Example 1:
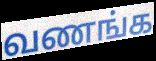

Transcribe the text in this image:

வணங்க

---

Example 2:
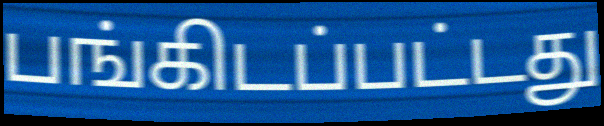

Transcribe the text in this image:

பங்கிடப்பட்டது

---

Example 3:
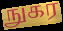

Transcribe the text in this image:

நுகர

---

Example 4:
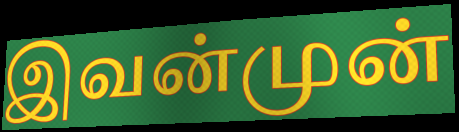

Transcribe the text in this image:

இவன்முன்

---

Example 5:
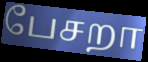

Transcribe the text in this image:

பேசறா